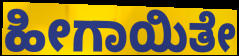
ಹೀಗಾಯಿತೇ